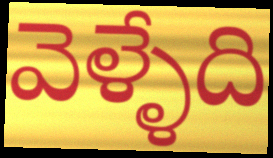
వెళ్ళేది